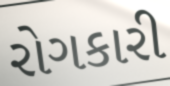
રોગકારી